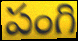
పంగి